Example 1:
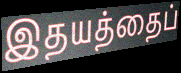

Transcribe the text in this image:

இதயத்தைப்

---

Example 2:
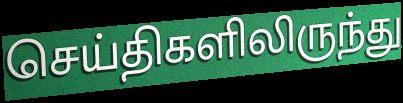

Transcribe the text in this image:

செய்திகளிலிருந்து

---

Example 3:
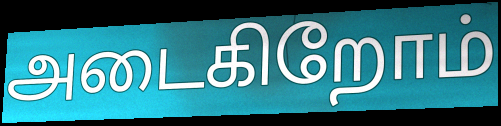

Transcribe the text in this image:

அடைகிறோம்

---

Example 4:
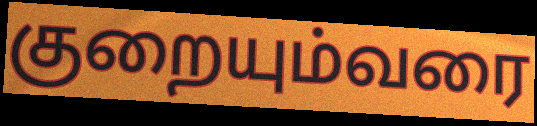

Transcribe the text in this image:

குறையும்வரை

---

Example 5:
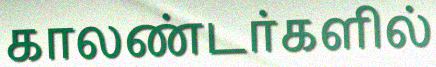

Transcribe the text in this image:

காலண்டர்களில்